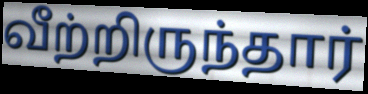
வீற்றிருந்தார்